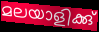
മലയാളിക്കു്